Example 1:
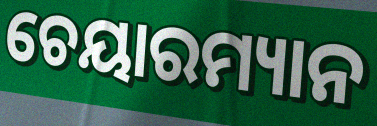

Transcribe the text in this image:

ଚେୟାରମ୍ୟାନ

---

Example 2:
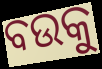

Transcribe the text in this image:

ବଉକୁ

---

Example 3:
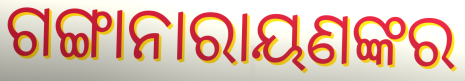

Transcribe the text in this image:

ଗଙ୍ଗାନାରାୟଣଙ୍କର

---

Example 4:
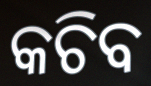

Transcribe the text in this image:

କଚିବ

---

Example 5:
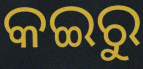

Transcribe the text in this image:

କଇରୁ